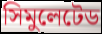
সিমুলেটেড